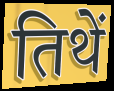
तिथें